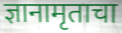
ज्ञानामृताचा